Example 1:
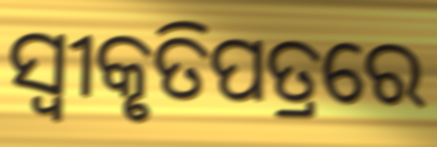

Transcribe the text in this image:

ସ୍ୱୀକୃତିପତ୍ରରେ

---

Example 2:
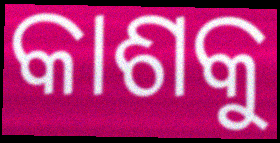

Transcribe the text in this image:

କାଶକୁ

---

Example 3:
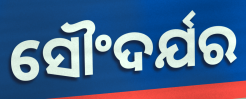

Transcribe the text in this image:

ସୌଂଦର୍ଯର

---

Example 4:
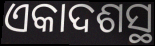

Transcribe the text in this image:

ଏକାଦଶସ୍ଥ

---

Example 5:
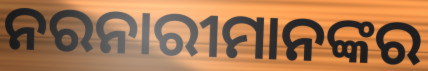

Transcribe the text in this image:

ନରନାରୀମାନଙ୍କର